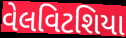
વેલવિટશિયા